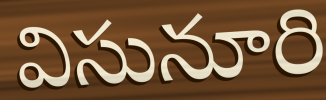
విసునూరి